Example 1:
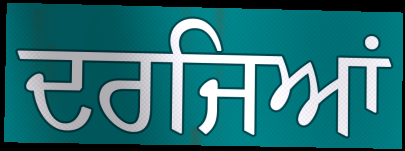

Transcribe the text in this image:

ਦਰਜਿਆਂ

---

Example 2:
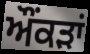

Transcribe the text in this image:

ਔਂਕੜਾਂ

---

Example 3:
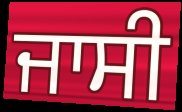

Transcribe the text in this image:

ਜਾਸੀ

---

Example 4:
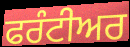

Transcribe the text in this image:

ਫਰੰਟੀਅਰ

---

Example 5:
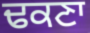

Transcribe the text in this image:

ਢਕਣਾ